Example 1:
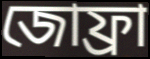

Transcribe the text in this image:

জোফ্রা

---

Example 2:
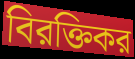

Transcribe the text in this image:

বিরক্তিকর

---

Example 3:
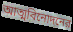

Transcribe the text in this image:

আত্মবিনোদনের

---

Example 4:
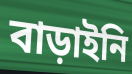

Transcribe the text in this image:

বাড়াইনি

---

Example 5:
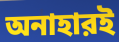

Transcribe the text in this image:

অনাহারই